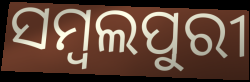
ସମ୍ବଲପୁରୀ